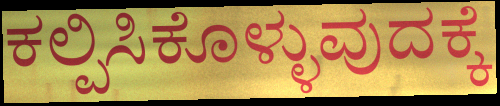
ಕಲ್ಪಿಸಿಕೊಳ್ಳುವುದಕ್ಕೆ